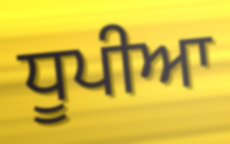
ਧੂਪੀਆ